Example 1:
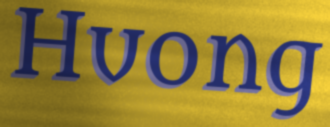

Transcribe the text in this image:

Huong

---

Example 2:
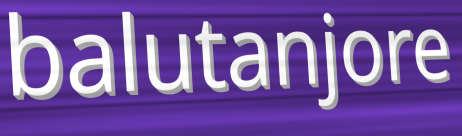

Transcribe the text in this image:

balutanjore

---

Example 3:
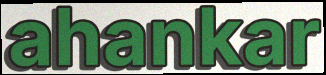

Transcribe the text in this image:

ahankar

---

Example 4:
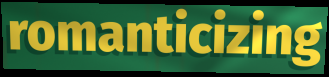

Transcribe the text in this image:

romanticizing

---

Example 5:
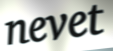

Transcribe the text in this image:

nevet